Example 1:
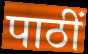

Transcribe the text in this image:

पाठीं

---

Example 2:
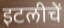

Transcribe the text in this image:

इटलीचें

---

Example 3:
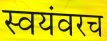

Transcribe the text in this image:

स्वयंवरच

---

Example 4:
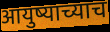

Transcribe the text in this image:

आयुष्याच्याच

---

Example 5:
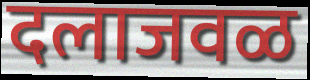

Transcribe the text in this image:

दलाजवळ